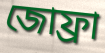
জোফ্রা